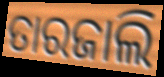
ତାରଜାଲି